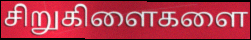
சிறுகிளைகளை